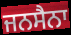
ਜਨਸੈਨਾ